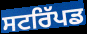
ਸਟਰਿੱਪਡ